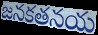
జనకతనయ